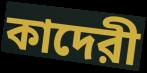
কাদেরী